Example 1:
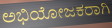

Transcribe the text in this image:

ಅಭಿಯೋಜಕರಾಗಿ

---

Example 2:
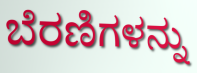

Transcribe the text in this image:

ಬೆರಣಿಗಳನ್ನು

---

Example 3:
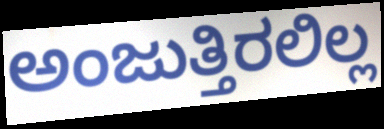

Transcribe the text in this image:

ಅಂಜುತ್ತಿರಲಿಲ್ಲ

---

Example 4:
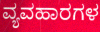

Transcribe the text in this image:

ವ್ಯವಹಾರಗಳ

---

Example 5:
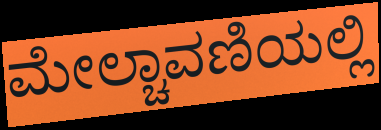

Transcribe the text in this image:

ಮೇಲ್ಚಾವಣಿಯಲ್ಲಿ